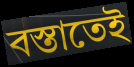
বস্তাতেই